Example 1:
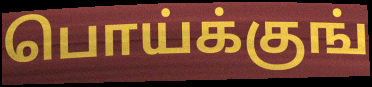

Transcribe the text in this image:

பொய்க்குங்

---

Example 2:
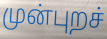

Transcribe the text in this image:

முன்புறச்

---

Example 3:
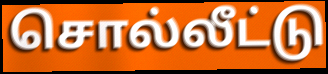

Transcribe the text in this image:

சொல்லீட்டு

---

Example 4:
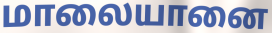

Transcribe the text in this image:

மாலையானை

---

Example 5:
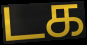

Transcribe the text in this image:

டக